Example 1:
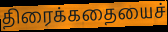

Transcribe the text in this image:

திரைக்கதையைச்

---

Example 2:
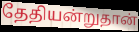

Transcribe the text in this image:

தேதியன்றுதான்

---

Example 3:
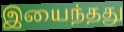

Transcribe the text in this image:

இயைந்தது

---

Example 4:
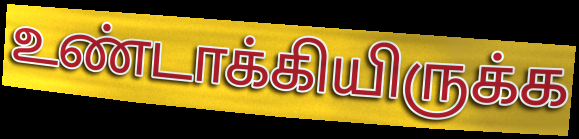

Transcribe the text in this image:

உண்டாக்கியிருக்க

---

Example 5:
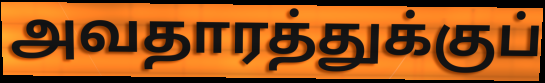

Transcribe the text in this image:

அவதாரத்துக்குப்